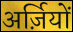
अर्ज़ियों